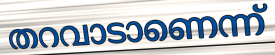
തറവാടാണെന്ന്